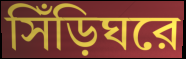
সিঁড়িঘরে